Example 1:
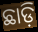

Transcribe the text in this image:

ଛାଡ଼ି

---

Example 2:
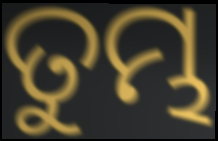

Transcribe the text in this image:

ତୁମ୍ଭ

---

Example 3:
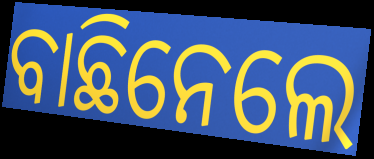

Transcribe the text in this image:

ବାଛିନେଲେ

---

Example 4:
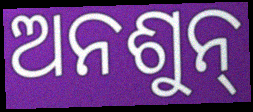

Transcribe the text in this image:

ଅନଶୁନ୍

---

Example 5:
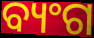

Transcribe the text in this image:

ବ୍ୟଂଗ